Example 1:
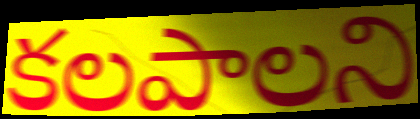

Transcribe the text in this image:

కలపాలని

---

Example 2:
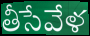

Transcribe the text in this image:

తీసేవేళ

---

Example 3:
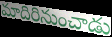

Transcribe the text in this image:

మాదిరినుంచాడు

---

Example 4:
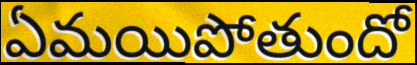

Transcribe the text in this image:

ఏమయిపోతుందో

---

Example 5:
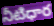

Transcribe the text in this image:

నీటిధార